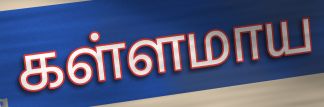
கள்ளமாய